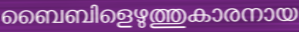
ബൈബിളെഴുത്തുകാരനായ